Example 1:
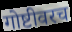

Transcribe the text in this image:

गोष्टीवरच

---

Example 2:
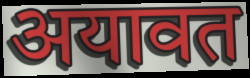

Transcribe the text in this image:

अयावत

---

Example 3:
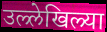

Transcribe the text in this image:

उल्लेखिल्या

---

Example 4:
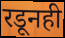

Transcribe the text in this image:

रडूनही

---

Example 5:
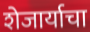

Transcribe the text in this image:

शेजार्याचा